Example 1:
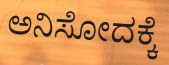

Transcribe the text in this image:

ಅನಿಸೋದಕ್ಕೆ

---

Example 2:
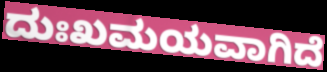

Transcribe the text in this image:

ದುಃಖಮಯವಾಗಿದೆ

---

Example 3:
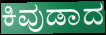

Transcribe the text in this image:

ಕಿವುಡಾದ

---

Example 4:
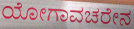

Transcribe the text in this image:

ಯೋಗಾವಚರೇನ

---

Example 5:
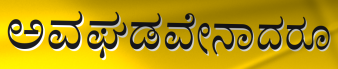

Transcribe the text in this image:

ಅವಘಡವೇನಾದರೂ